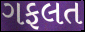
ગફલત